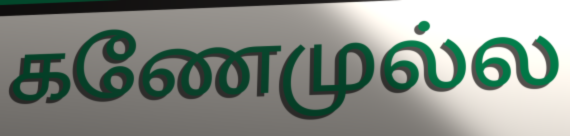
கணேமுல்ல